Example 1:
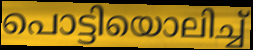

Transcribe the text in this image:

പൊട്ടിയൊലിച്ച്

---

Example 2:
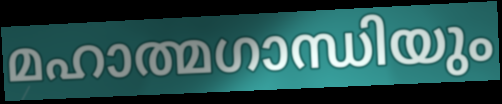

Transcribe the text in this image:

മഹാത്മഗാന്ധിയും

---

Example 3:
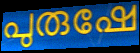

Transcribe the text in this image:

പുരുഷേ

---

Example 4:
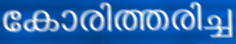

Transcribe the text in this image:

കോരിത്തരിച്ച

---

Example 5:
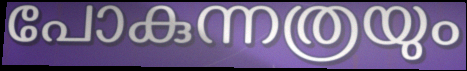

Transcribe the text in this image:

പോകുന്നത്രയും